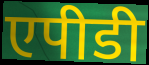
एपीडी